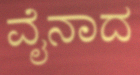
ವೈನಾದ